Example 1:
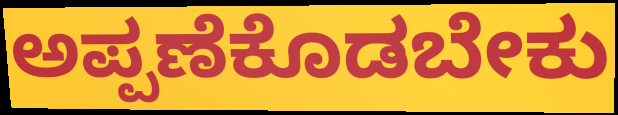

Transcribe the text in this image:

ಅಪ್ಪಣೆಕೊಡಬೇಕು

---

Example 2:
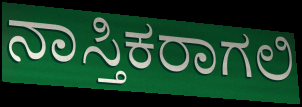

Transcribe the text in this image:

ನಾಸ್ತಿಕರಾಗಲಿ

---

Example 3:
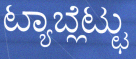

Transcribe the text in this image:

ಟ್ಯಾಬ್ಲೆಟ್ಟು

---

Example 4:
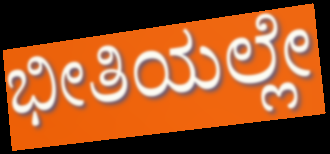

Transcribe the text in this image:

ಭೀತಿಯಲ್ಲೇ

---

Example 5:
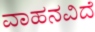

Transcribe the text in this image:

ವಾಹನವಿದೆ